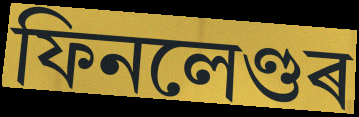
ফিনলেণ্ডৰ